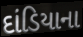
દાંડિયાના